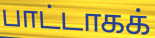
பாட்டாகக்